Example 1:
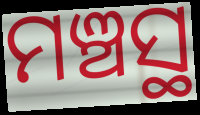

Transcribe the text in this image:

ମଞ୍ଚସ୍ଥ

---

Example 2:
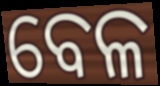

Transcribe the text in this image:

ବେଳ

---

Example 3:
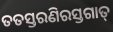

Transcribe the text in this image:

ତତସ୍ତରଣିରସ୍ତଗାତ୍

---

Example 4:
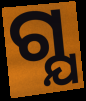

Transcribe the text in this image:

ଗ୍ଯ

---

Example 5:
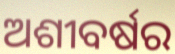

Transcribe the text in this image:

ଅଶୀବର୍ଷର